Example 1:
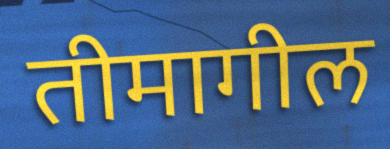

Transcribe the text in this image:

तीमागील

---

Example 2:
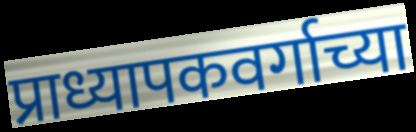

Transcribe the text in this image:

प्राध्यापकवर्गाच्या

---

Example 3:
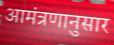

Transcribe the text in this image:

आमंत्रणानुसार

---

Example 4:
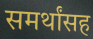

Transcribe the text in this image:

समर्थांसह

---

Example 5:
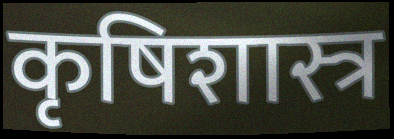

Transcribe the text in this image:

कृषिशास्त्र